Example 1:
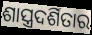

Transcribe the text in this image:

ଶାସ୍ତ୍ରଦର୍ଶିତାର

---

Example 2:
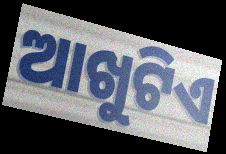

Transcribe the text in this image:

ଆଖୁଟିଏ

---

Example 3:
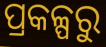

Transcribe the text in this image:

ପ୍ରକଳ୍ପରୁ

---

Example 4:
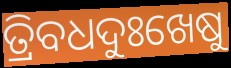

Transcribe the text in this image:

ତ୍ରିବଧଦୁଃଖେଷୁ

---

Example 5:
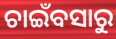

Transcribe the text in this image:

ଚାଇଁବସାରୁ